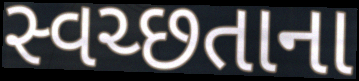
સ્વચ્છતાના